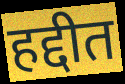
हद्दीत